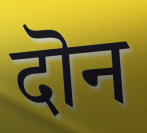
दॊन